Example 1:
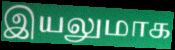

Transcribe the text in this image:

இயலுமாக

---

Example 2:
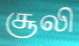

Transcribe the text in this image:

சூலி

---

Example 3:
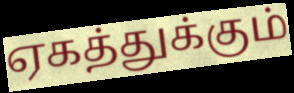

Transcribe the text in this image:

ஏகத்துக்கும்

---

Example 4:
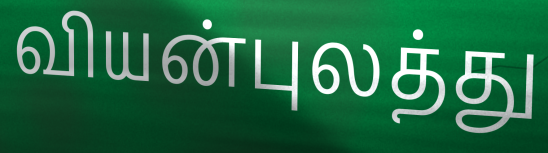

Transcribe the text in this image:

வியன்புலத்து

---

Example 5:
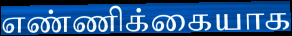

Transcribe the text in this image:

எண்ணிக்கையாக